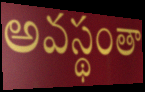
అవస్థంతా